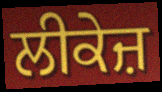
ਲੀਕੇਜ਼